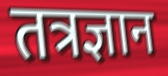
तत्रज्ञान